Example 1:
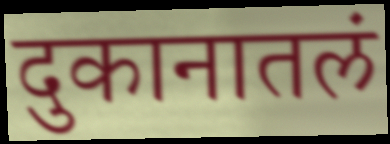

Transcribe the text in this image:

दुकानातलं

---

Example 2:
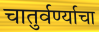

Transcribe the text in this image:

चातुर्वर्ण्याचा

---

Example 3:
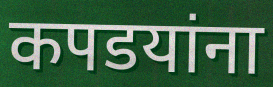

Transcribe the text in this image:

कपडयांना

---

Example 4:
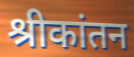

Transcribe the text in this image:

श्रीकांतन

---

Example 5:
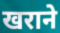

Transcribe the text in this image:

खराने